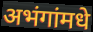
अभंगांमधे